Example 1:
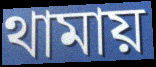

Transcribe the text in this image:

থামায়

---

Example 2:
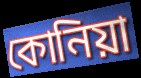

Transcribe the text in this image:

কোনিয়া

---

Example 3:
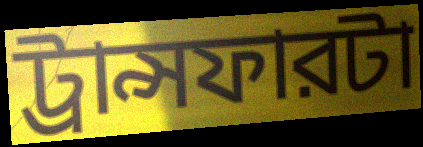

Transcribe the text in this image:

ট্রান্সফারটা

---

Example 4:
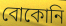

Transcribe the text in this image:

বোকোনি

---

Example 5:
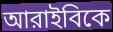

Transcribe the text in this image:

আরাইবিকে